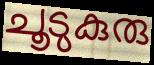
ചൂടുകുരു